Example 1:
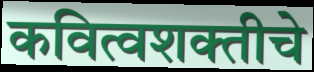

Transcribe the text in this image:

कवित्वशक्तीचे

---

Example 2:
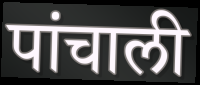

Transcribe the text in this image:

पांचाली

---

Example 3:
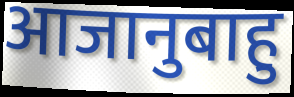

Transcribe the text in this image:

आजानुबाहु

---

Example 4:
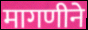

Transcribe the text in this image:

मागणीने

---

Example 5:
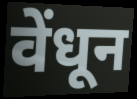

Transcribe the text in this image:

वेंधून